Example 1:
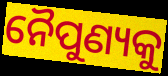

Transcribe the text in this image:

ନୈପୁଣ୍ୟକୁ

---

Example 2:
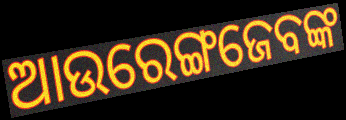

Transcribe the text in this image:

ଆଉରେଙ୍ଗଜେବଙ୍କ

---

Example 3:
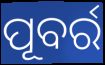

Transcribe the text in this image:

ପୂବର୍ର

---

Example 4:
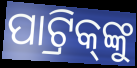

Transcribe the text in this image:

ପାଟ୍ରିକ୍‌ଙ୍କୁ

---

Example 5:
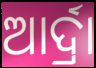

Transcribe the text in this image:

ଆର୍ଦ୍ରା